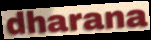
dharana